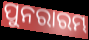
ପୁନରାରମ୍ଭ